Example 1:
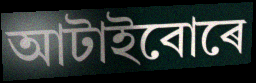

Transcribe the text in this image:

আটাইবোৰে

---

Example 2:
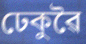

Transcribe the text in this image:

ঢেকুৱৈ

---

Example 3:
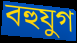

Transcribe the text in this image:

বহুযুগ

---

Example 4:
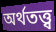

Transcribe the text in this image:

অৰ্থতত্ত্ব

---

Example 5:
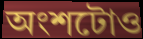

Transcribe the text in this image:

অংশটোও